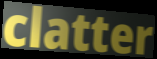
clatter